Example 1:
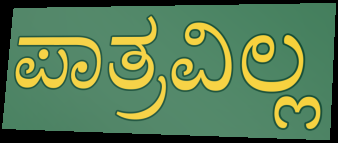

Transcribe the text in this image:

ಪಾತ್ರವಿಲ್ಲ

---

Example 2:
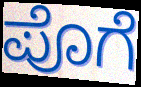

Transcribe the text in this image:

ಪೊಗೆ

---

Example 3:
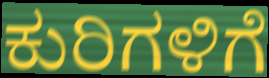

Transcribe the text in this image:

ಕುರಿಗಳಿಗೆ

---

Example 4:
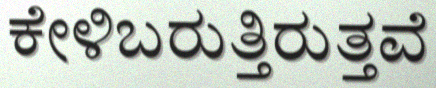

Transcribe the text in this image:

ಕೇಳಿಬರುತ್ತಿರುತ್ತವೆ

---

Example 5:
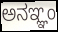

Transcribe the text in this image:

ಅನಞ್ಞಂ